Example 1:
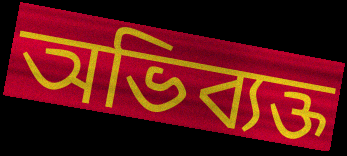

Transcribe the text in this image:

অভিব্যক্ত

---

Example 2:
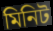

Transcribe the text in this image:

মিনিট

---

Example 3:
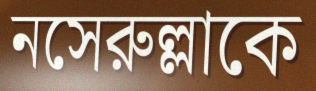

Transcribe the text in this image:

নসেরুল্লাকে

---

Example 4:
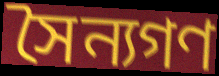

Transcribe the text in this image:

সৈন্যগণ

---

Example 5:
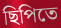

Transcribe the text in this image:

ছিপিতে